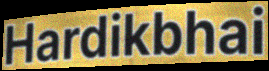
Hardikbhai